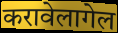
करावेलागेल